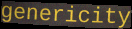
genericity